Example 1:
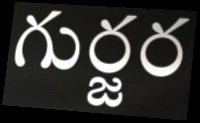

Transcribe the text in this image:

గుర్జర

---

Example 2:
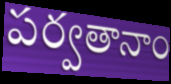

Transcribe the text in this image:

పర్వతానాం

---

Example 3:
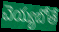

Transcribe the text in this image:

చెయ్యబోతే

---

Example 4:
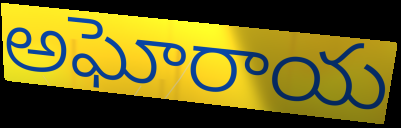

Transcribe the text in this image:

అఘోరాయ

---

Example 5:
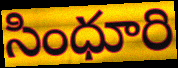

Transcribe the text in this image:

సింధూరి